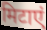
मिटाएं